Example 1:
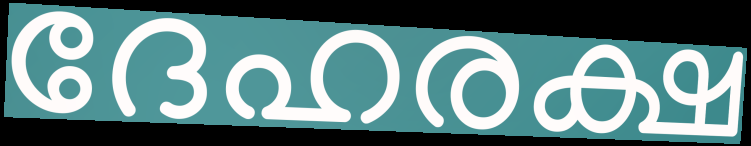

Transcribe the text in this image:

ദേഹരക്ഷ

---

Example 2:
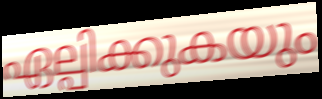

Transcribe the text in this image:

ഏല്പിക്കുകയും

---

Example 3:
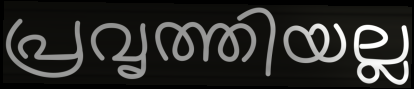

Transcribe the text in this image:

പ്രവൃത്തിയല്ല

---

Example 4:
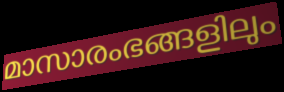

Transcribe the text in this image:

മാസാരംഭങ്ങളിലും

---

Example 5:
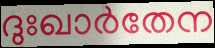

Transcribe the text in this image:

ദുഃഖാർതേന